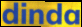
dinda